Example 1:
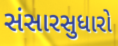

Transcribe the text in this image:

સંસારસુધારો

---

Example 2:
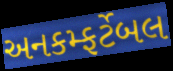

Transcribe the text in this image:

અનકમ્ફર્ટેબલ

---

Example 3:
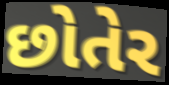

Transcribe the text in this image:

છોતેર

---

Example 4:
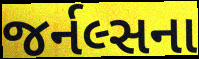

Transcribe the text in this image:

જર્નલ્સના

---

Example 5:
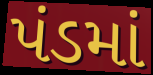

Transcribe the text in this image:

પંડમાં